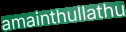
amainthullathu